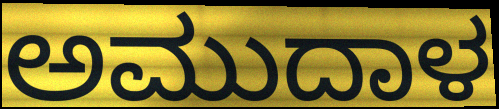
ಅಮುದಾಳ